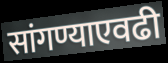
सांगण्याएवढी